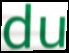
du